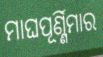
ମାଘପୂର୍ଣ୍ଣିମାର